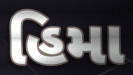
હિમા